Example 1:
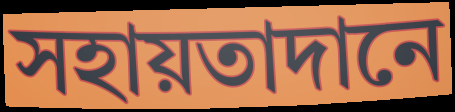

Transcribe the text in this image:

সহায়তাদানে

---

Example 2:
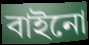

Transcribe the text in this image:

বাইনো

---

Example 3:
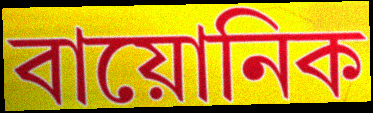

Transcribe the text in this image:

বায়োনিক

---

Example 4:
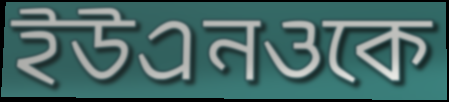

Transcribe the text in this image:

ইউএনওকে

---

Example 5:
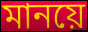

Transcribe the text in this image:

মানয়ে